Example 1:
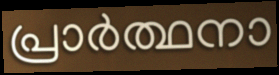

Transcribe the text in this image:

പ്രാർത്ഥനാ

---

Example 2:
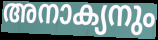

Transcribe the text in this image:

അനാക്യനും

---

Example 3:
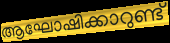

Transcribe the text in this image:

ആഘോഷിക്കാറുണ്ട്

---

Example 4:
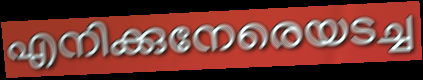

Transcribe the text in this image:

എനിക്കുനേരെയടച്ച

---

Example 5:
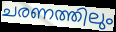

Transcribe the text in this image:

ചരണത്തിലും